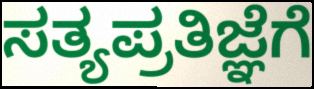
ಸತ್ಯಪ್ರತಿಜ್ಞೆಗೆ